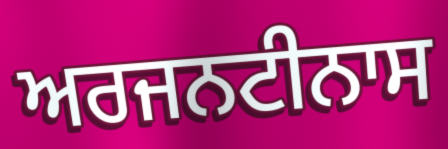
ਅਰਜਨਟੀਨਾਸ